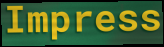
Impress